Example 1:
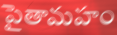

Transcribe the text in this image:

పైతామహం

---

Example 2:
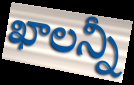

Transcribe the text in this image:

ఖాలన్నీ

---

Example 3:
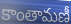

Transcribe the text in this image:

కాంతామణీ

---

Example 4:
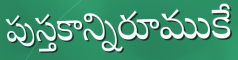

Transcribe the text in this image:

పుస్తకాన్నిరూముకే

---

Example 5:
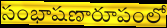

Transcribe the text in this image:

సంభాషణారూపంలో